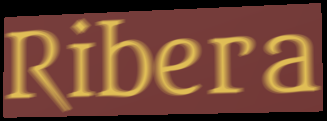
Ribera